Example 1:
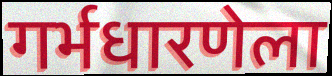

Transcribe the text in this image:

गर्भधारणेला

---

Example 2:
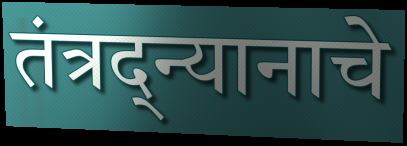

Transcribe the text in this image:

तंत्रद्न्यानाचे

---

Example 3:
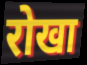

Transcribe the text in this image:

रोखा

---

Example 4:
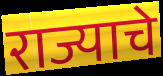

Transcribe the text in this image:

राज्याचे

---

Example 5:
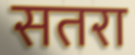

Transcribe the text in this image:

सतरा